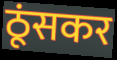
ठूंसकर